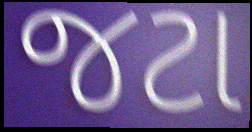
જટા